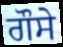
ਗੌਸੇ